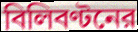
বিলিবণ্টনের